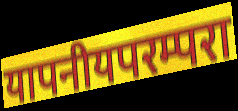
यापनीयपरम्परा